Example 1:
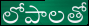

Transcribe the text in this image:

లోపాలతో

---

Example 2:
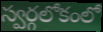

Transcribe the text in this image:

స్వర్గలోకంలో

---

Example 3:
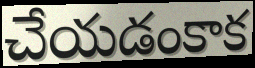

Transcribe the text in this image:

చేయడంకాక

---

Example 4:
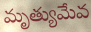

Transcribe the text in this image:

మృత్యుమేవ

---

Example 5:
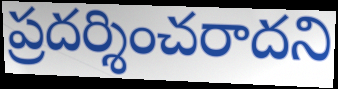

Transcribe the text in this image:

ప్రదర్శించరాదని